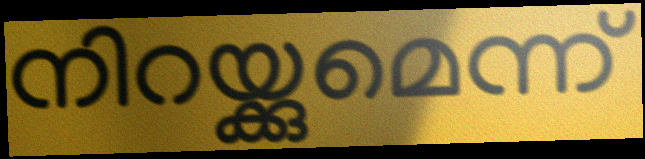
നിറയ്ക്കുമെന്ന്